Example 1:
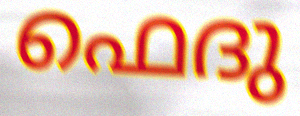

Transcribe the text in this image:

ഫെദു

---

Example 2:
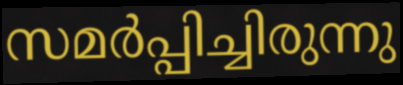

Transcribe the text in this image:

സമർപ്പിച്ചിരുന്നു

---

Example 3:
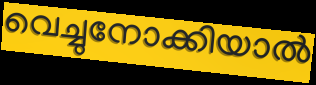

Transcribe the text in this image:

വെച്ചുനോക്കിയാൽ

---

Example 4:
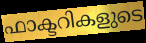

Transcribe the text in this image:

ഫാക്ടറികളുടെ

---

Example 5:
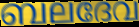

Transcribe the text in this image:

ബലദേവ